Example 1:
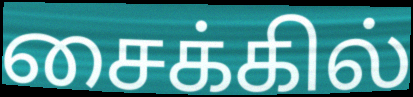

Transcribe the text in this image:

சைக்கில்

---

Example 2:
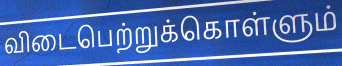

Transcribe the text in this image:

விடைபெற்றுக்கொள்ளும்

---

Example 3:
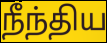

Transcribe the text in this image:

நீந்திய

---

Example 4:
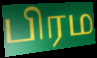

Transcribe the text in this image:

பிரம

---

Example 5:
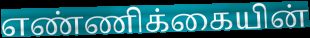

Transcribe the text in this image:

எண்ணிக்கையின்